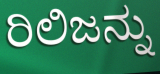
ರಿಲಿಜನ್ನು